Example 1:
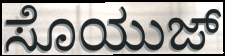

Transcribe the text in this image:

ಸೊಯುಜ್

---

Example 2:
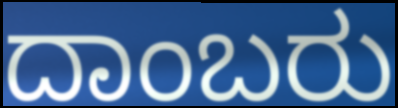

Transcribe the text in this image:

ದಾಂಬರು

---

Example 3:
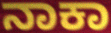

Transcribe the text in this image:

ನಾಕಾ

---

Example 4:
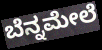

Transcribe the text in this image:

ಬೆನ್ನಮೇಲೆ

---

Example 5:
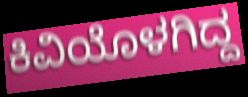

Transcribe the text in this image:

ಕಿವಿಯೊಳಗಿದ್ದ